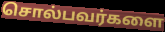
சொல்பவர்களை